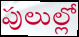
పులుల్లో